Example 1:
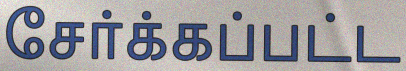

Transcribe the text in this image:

சேர்க்கப்பட்ட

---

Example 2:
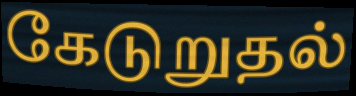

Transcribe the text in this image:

கேடுறுதல்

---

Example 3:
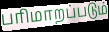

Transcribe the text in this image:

பரிமாறப்படும்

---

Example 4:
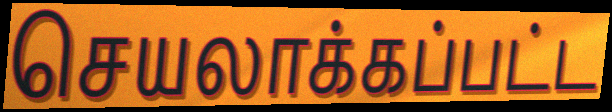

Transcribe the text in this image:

செயலாக்கப்பட்ட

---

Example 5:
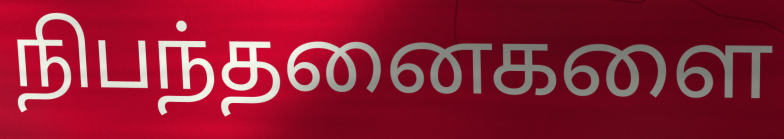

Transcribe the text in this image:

நிபந்தனைகளை